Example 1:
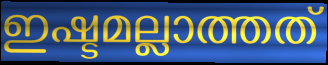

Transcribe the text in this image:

ഇഷ്ടമല്ലാത്തത്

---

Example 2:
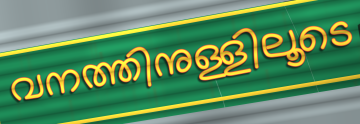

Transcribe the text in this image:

വനത്തിനുള്ളിലൂടെ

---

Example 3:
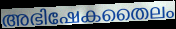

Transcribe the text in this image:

അഭിഷേകതൈലം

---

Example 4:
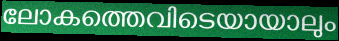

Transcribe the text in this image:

ലോകത്തെവിടെയായാലും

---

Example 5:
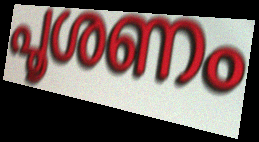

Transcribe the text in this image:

പൂശണം